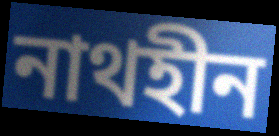
নাথহীন